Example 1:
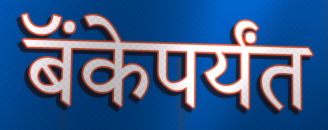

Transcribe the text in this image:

बॅंकेपर्यंत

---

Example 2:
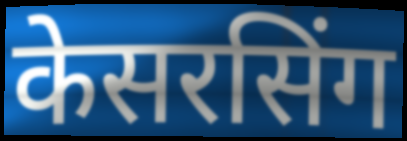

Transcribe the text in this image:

केसरसिंग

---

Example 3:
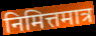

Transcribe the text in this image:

निमित्तमात्र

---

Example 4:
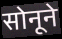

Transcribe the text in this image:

सोनूने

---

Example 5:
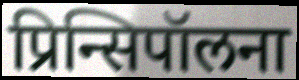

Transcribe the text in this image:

प्रिन्सिपॉलना